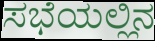
ಸಭೆಯಲ್ಲಿನ